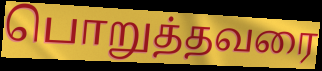
பொறுத்தவரை